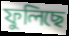
ফুলিছে